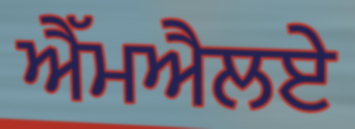
ਐੱਮਐਲਏ